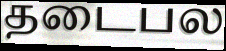
தடைபல